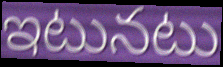
ఇటునటు